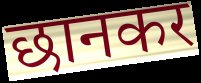
छानकर